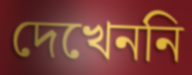
দেখেননি